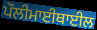
ਪੌਲੀਮਾਈਥਾਈਲ